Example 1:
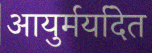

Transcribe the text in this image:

आयुर्मर्यादेत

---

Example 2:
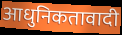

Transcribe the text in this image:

आधुनिकतावादी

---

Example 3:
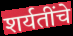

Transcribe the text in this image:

शर्यतींचे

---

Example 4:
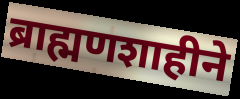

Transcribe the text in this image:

ब्राह्मणशाहीने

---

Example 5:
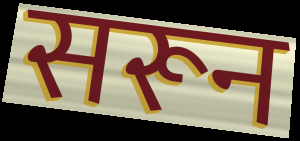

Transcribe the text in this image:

सरून